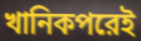
খানিকপরেই